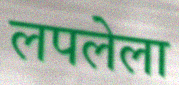
लपलेला